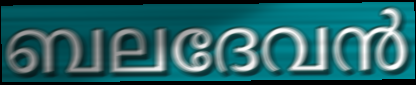
ബലദേവൻ